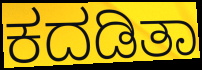
ಕದಡಿತಾ